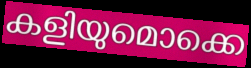
കളിയുമൊക്കെ